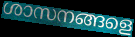
ശാസനങ്ങളെ